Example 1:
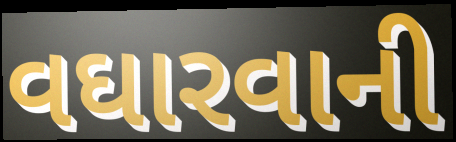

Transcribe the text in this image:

વઘારવાની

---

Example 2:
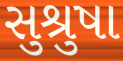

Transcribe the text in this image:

સુશ્રુષા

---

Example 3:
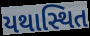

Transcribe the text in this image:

યથાસ્થિત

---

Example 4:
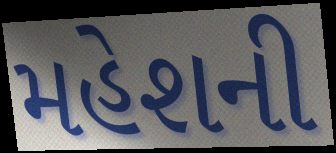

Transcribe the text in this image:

મહેશની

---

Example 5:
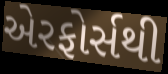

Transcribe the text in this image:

એરફોર્સથી